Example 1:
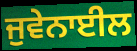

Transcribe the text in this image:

ਜੁਵੇਨਾਈਲ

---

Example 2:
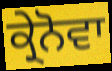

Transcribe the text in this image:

ਕ੍ਰੇਨੋਵਾ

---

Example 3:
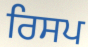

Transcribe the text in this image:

ਰਿਸਪ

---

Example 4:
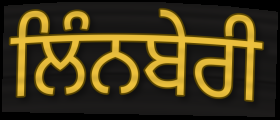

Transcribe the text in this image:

ਲਿੰਨਬੇਰੀ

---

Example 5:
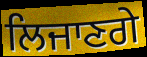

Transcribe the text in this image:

ਲਿਜਾਣਗੇ